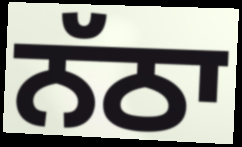
ਨੱਠਾ